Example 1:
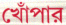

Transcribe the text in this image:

খোঁপার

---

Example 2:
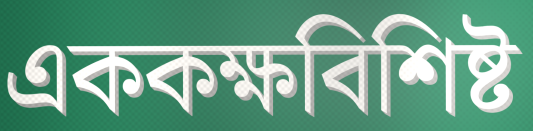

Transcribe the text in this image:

এককক্ষবিশিষ্ট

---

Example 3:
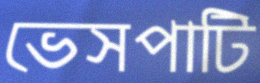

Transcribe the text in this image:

ভেসপাটি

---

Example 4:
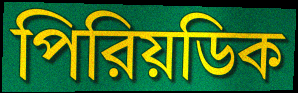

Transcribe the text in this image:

পিরিয়ডিক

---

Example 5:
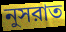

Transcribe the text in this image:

নুসরাত